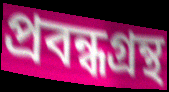
প্ৰবন্ধগ্ৰন্থ